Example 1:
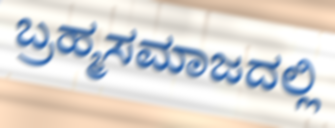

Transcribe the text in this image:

ಬ್ರಹ್ಮಸಮಾಜದಲ್ಲಿ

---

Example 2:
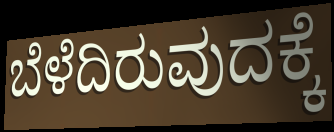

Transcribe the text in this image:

ಬೆಳೆದಿರುವುದಕ್ಕೆ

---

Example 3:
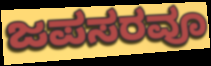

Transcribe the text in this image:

ಜಪಸರವೂ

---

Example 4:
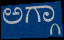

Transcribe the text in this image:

ಅಗ್ಗಾ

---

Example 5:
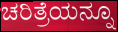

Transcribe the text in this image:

ಚರಿತ್ರೆಯನ್ನೂ